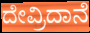
ದೇವ್ರಿದಾನೆ